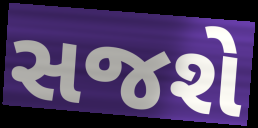
સજશે